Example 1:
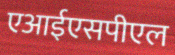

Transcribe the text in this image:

एआईएसपीएल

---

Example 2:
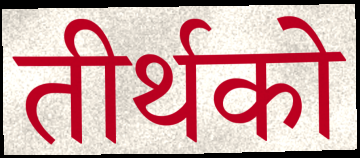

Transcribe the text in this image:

तीर्थको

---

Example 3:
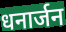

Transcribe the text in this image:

धनार्जन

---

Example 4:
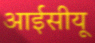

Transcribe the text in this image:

आईसीयू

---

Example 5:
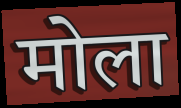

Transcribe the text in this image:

मोला